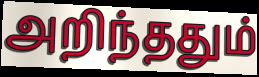
அறிந்ததும்